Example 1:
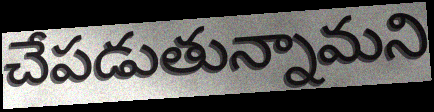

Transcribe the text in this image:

చేపడుతున్నామని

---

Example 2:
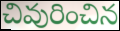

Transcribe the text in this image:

చివురించిన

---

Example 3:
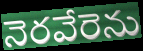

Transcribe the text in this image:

నెరవేరెను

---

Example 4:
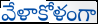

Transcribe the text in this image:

వేళాకోళంగా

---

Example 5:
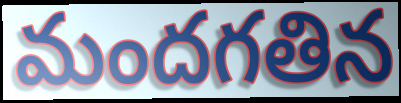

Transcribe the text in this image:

మందగతిన